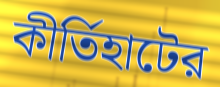
কীর্তিহাটের